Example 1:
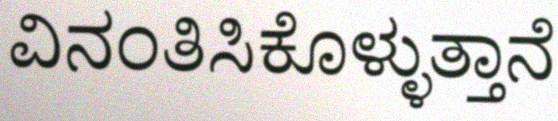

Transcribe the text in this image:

ವಿನಂತಿಸಿಕೊಳ್ಳುತ್ತಾನೆ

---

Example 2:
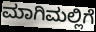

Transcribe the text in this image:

ಮಾಗಿಮಲ್ಲಿಗೆ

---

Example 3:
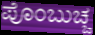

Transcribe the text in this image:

ಪೊಂಬುಚ್ಚ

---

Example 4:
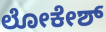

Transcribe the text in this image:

ಲೋಕೇಶ್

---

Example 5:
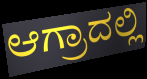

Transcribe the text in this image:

ಆಗ್ರಾದಲ್ಲಿ